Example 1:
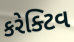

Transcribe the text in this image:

કરેક્ટિવ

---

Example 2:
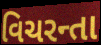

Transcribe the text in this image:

વિચરન્તા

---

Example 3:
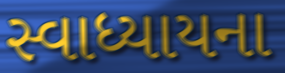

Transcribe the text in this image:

સ્વાધ્યાયના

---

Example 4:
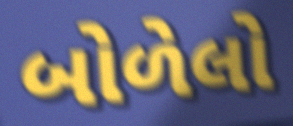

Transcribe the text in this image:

બોળેલો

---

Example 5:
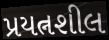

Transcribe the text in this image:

પ્રયત્નશીલ